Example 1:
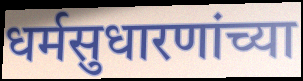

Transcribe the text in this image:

धर्मसुधारणांच्या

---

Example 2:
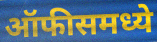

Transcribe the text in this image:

ऑफीसमध्ये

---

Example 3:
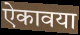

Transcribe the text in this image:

ऐकावया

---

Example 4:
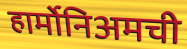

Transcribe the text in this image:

हार्मोनिअमची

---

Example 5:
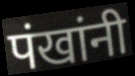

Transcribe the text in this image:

पंखांनी